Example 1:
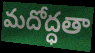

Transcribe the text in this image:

మదోద్ధతా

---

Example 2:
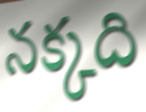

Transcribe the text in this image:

నక్కది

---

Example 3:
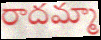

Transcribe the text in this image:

రాదమ్మా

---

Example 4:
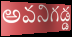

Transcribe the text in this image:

అవనిగడ్డ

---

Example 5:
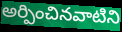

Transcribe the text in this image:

అర్పించినవాటిని